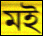
মই